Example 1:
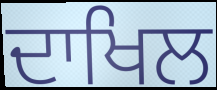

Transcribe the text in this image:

ਦਾਖਿਲ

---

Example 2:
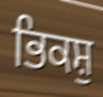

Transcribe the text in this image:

ਭਿਕਸ਼ੁ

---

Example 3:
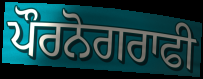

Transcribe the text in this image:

ਪੌਰਨੋਗਰਾਫੀ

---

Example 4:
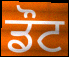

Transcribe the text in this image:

ਡੌਟ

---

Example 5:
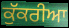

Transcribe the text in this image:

ਕੁੱਕਰੀਆ